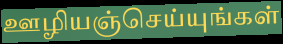
ஊழியஞ்செய்யுங்கள்